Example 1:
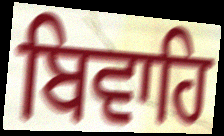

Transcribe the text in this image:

ਬਿਵਾਹਿ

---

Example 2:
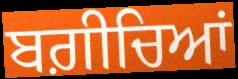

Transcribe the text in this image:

ਬਗ਼ੀਚਿਆਂ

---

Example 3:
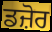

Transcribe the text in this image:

ਡਜ਼ੋਰ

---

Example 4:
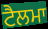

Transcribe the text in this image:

ਟੈਲਮਾ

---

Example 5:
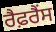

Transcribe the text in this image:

ਰੈਫ਼ਰੈਂਸ